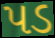
પડ